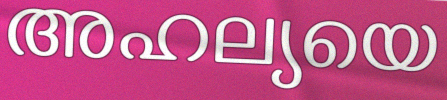
അഹല്യയെ